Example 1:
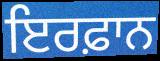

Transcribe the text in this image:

ਇਰਫ਼ਾਨ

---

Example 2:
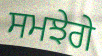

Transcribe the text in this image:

ਸਮਝੇਗੇ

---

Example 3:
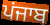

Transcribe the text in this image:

ਪਂਜਾਬ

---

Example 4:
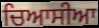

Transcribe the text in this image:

ਚਿਆਸੀਆ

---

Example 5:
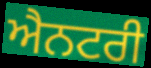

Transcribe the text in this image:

ਐਨਟਰੀ